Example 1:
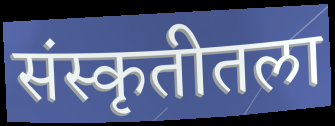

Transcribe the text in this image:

संस्कृतीतला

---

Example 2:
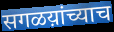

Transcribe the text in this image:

सगळय़ांच्याच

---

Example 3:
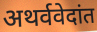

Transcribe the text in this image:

अथर्ववेदांत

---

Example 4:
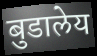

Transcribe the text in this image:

बुडालेय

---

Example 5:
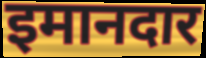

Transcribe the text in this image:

इमानदार